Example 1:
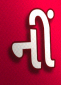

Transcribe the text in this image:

નીં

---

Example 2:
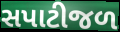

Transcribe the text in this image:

સપાટીજળ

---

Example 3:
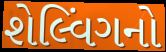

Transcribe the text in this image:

શેલ્વિંગનો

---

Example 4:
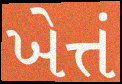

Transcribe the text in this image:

ખેત્તં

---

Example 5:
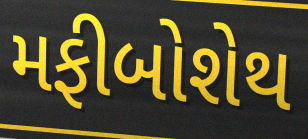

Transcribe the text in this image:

મફીબોશેથ